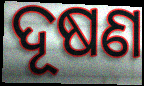
ଦୂଷଣ